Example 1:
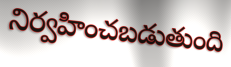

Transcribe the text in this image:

నిర్వహించబడుతుంది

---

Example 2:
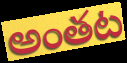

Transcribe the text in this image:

అంతట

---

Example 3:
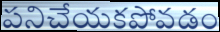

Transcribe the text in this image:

పనిచేయకపోవడం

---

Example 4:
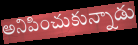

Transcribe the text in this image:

అనిపించుకున్నాడు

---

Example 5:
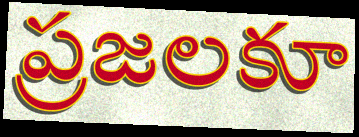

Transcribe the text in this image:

ప్రజలకూ